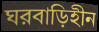
ঘরবাড়িহীন